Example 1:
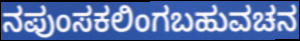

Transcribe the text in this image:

ನಪುಂಸಕಲಿಂಗಬಹುವಚನ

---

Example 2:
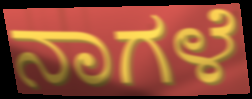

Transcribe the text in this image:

ನಾಗಳೆ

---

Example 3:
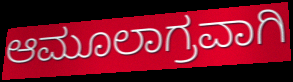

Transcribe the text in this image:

ಆಮೂಲಾಗ್ರವಾಗಿ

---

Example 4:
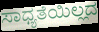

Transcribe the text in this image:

ಸಾಧ್ಯತೆಯಿಲ್ಲದ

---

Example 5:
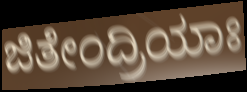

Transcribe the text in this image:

ಜಿತೇಂದ್ರಿಯಾಃ